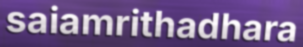
saiamrithadhara